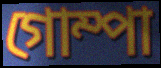
গোম্পা